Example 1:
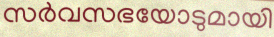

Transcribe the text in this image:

സർവസഭയോടുമായി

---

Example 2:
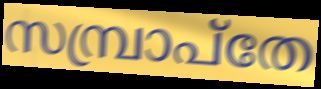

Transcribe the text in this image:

സമ്പ്രാപ്തേ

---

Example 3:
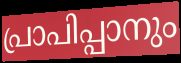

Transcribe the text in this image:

പ്രാപിപ്പാനും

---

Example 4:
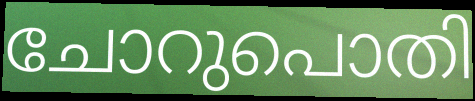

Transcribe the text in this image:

ചോറുപൊതി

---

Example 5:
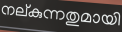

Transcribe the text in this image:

നല്കുന്നതുമായി